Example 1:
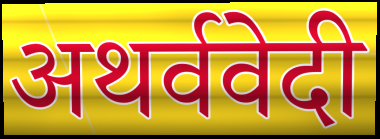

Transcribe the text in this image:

अथर्ववेदी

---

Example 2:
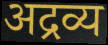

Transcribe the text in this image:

अद्रव्य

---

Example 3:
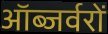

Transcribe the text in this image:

ऑब्जर्वरों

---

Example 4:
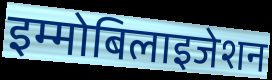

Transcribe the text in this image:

इम्मोबिलाइजेशन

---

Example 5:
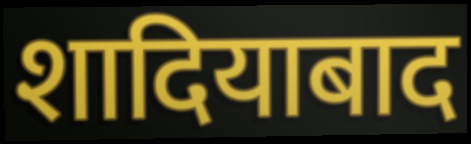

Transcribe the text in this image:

शादियाबाद